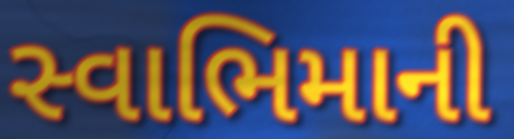
સ્વાભિમાની